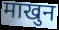
माखुन